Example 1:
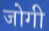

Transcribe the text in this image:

जोगी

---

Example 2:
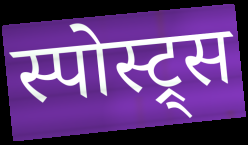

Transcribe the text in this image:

स्पोस्ट्र्स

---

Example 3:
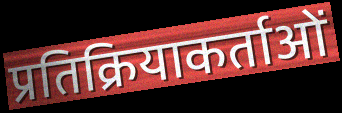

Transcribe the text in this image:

प्रतिक्रियाकर्ताओं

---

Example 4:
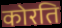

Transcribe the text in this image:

कोरति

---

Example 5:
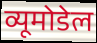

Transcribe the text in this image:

व्यूमोडेल